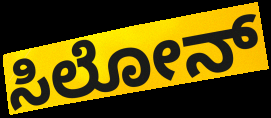
ಸಿಲೋನ್